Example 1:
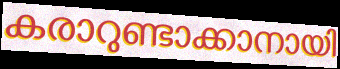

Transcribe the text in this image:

കരാറുണ്ടാക്കാനായി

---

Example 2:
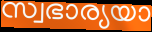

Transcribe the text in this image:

സ്വഭാര്യയാ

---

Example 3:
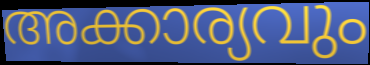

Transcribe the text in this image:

അക്കാര്യവും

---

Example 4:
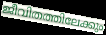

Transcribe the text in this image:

ജീവിതത്തിലേക്കും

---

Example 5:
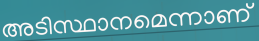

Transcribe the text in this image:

അടിസ്ഥാനമെന്നാണ്